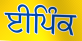
ਈਪਿੰਕ